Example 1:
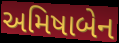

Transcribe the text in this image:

અમિષાબેન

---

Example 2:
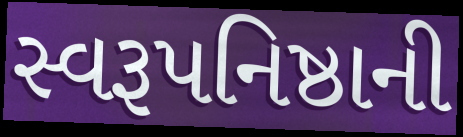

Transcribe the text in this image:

સ્વરૂપનિષ્ઠાની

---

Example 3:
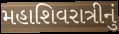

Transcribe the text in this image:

મહાશિવરાત્રીનું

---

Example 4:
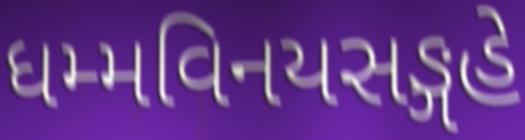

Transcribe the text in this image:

ધમ્મવિનયસઙ્ગહે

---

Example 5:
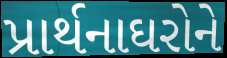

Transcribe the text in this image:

પ્રાર્થનાઘરોને